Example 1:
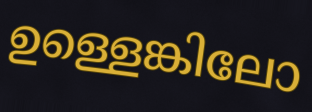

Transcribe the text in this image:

ഉള്ളെങ്കിലോ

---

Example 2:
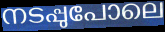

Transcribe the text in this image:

നടപ്പുപോലെ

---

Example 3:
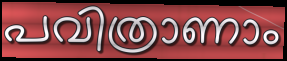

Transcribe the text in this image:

പവിത്രാണാം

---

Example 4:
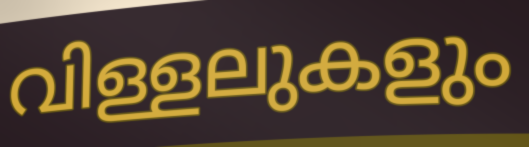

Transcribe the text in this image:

വിള്ളലുകളും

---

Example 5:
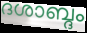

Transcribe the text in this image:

ദശാബ്ദം